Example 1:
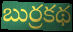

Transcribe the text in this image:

బుర్రకథ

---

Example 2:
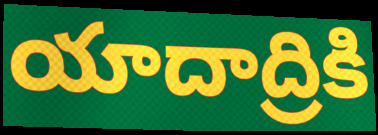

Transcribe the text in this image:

యాదాద్రికి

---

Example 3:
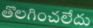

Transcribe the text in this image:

తొలగించలేదు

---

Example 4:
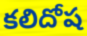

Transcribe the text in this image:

కలిదోష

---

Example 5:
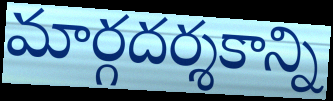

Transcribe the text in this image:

మార్గదర్శకాన్ని